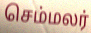
செம்மலர்